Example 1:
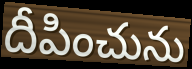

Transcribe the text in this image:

దీపించును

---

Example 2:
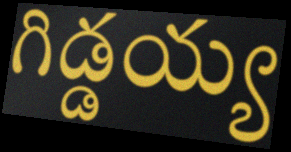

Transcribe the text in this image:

గిడ్డయ్య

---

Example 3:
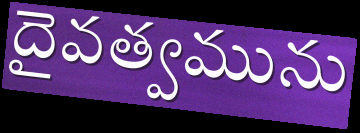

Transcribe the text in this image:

దైవత్వమును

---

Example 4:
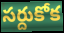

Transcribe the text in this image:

సర్దుకోక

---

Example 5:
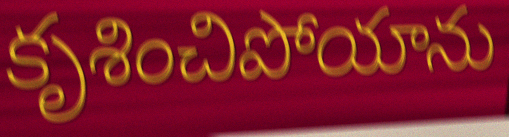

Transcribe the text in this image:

కృశించిపోయాను